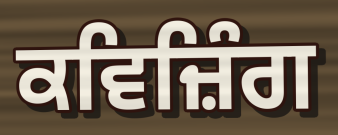
ਕਵਿਜ਼ਿੰਗ